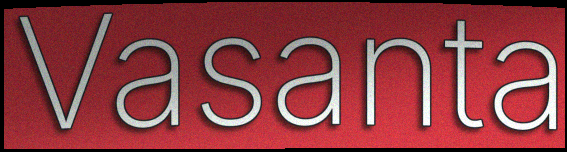
Vasanta